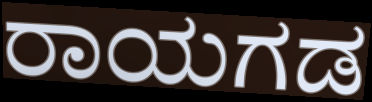
ರಾಯಗಡ